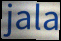
jala